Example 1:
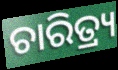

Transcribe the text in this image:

ଚାରିତ୍ର୍ୟ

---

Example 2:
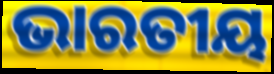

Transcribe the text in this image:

ଭାରତୀୟ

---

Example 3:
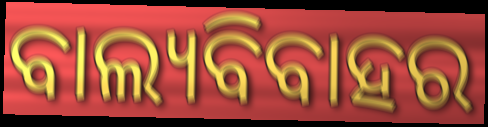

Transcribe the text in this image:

ବାଲ୍ୟବିବାହର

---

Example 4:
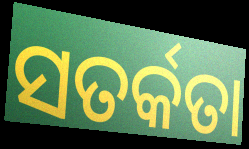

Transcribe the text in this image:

ସତର୍କତା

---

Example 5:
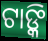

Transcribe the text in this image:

ଟାଙ୍କି